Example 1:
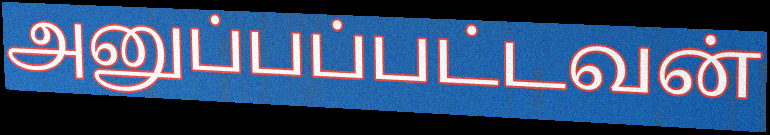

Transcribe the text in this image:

அனுப்பப்பட்டவன்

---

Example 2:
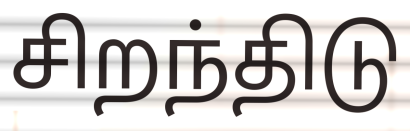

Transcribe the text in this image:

சிறந்திடு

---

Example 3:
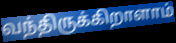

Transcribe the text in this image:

வந்திருக்கிறாளாம்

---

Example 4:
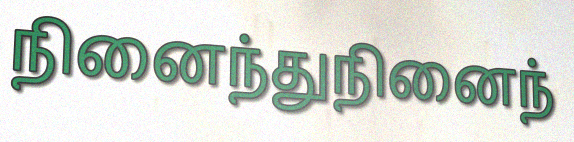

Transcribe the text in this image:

நினைந்துநினைந்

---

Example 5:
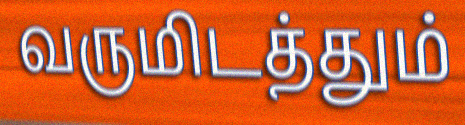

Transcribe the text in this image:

வருமிடத்தும்